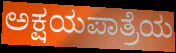
ಅಕ್ಷಯಪಾತ್ರೆಯ